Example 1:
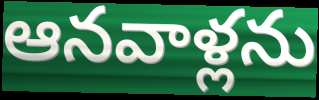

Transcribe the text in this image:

ఆనవాళ్లను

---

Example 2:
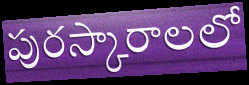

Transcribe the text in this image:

పురస్కారాలలో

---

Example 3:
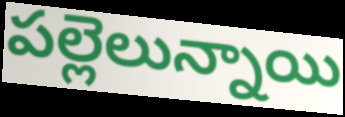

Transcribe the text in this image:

పల్లెలున్నాయి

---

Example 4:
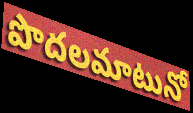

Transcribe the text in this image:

పొదలమాటునో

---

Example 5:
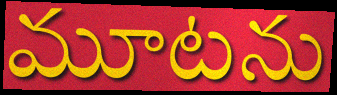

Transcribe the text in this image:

మూటను